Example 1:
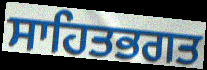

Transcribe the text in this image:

ਸਾਹਿਤਭਗਤ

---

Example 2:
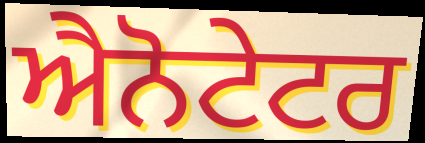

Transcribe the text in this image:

ਐਨੋਟੇਟਰ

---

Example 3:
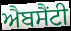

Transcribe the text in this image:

ਐਬਸੈਂਟੀ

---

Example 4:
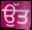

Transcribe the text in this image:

ਉੱਤ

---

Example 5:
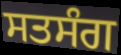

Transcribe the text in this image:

ਸਤਸੰਗ